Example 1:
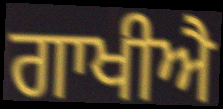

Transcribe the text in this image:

ਗਾਖੀਐ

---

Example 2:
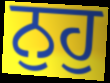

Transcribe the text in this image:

ਨੁਹੁ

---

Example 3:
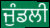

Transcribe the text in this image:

ਜੁੰਡਲੀ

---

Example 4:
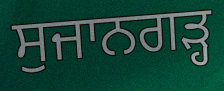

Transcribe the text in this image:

ਸੁਜਾਨਗੜ੍ਹ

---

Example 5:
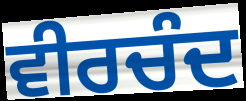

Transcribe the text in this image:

ਵੀਰਚੰਦ